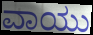
ವಾಯು